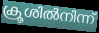
ക്രൂശിൽനിന്ന്